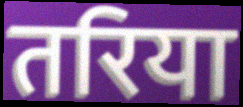
तरिया